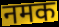
नमक